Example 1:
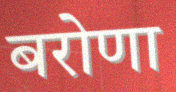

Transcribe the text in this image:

बरोणा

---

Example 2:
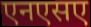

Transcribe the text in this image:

एनएसए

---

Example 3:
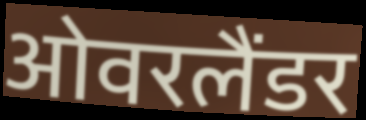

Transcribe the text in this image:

ओवरलैंडर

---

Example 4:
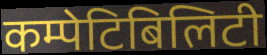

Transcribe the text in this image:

कम्पेटिबिलिटी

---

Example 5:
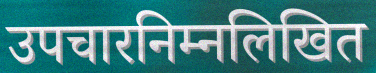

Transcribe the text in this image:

उपचारनिम्नलिखित